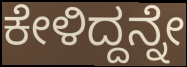
ಕೇಳಿದ್ದನ್ನೇ